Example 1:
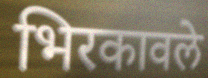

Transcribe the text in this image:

भिरकावले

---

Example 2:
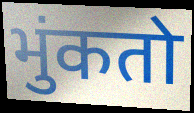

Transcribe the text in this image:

भुंकतो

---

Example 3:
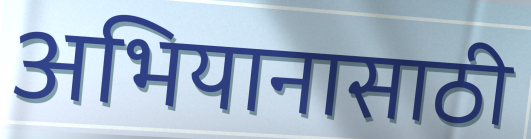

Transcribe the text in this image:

अभियानासाठी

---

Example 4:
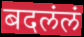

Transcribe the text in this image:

बदलंलं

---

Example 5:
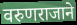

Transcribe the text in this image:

वरुणराजाने